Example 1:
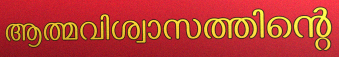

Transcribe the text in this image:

ആത്മവിശ്വാസത്തിന്റെ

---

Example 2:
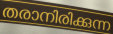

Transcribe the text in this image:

തരാനിരിക്കുന്ന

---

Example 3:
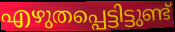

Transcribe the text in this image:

എഴുതപ്പെട്ടിട്ടുണ്ട്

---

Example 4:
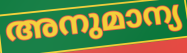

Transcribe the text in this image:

അനുമാന്യ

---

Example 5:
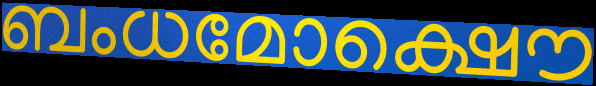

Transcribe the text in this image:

ബംധമോക്ഷൌ